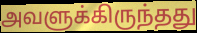
அவளுக்கிருந்தது